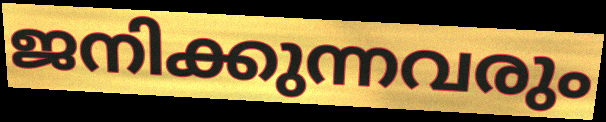
ജനിക്കുന്നവരും